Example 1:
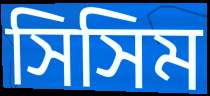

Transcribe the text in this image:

সিসিম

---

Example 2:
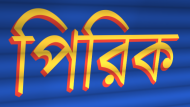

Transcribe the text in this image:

পিরিক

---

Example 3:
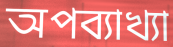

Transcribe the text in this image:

অপব্যাখ্যা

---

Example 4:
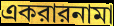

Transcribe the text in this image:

একরারনামা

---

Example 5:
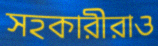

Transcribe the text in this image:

সহকারীরাও